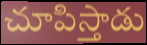
చూపిస్తాడు